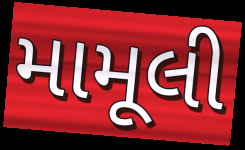
મામૂલી